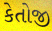
કેતોજી